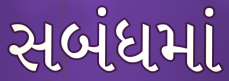
સબંધમાં